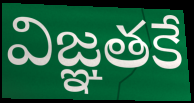
విజ్ఞతకే